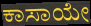
ಕಾಸಾಯೇ